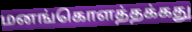
மனங்கொளத்தக்கது